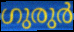
ഗുരുർ